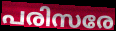
പരിസരേ